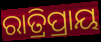
ରାତ୍ରିପ୍ରାୟ